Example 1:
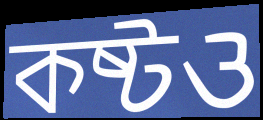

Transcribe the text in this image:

কষ্টও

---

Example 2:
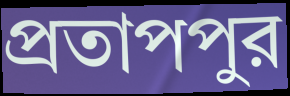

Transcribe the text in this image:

প্রতাপপুর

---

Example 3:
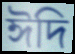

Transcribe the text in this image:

ঈদি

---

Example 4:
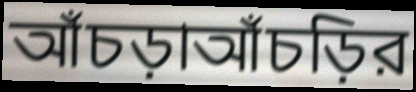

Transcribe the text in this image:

আঁচড়াআঁচড়ির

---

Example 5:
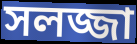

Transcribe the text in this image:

সলজ্জা